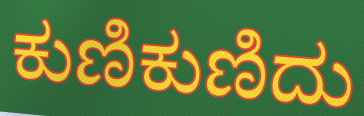
ಕುಣಿಕುಣಿದು